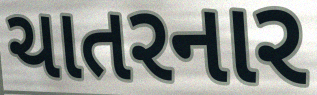
ચાતરનાર